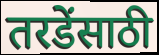
तरडेंसाठी